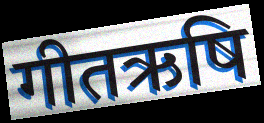
गीतऋषि